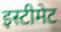
इस्टीमेट